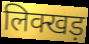
लिक्खड़